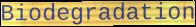
Biodegradation